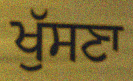
ਖੁੱਸਣਾ